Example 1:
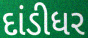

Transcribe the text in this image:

દાંડીધર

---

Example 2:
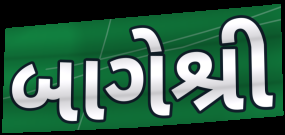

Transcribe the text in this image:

બાગેશ્રી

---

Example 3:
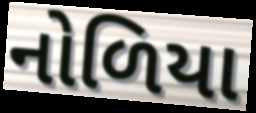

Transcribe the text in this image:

નોળિયા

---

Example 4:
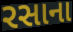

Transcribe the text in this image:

રસાના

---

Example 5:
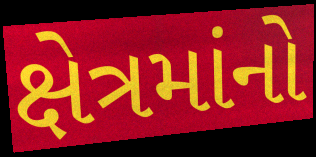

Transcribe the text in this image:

ક્ષેત્રમાંનો